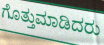
ಗೊತ್ತುಮಾಡಿದರು